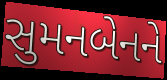
સુમનબેનને